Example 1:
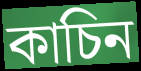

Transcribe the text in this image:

কাচিন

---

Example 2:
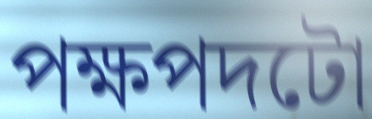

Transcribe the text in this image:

পক্ষপদটো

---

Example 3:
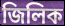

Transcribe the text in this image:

জিলিক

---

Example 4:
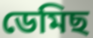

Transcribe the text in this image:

ডেমিছ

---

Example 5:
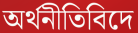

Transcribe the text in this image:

অৰ্থনীতিবিদে